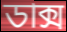
ডাক্স